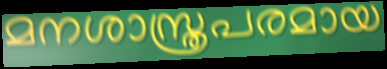
മനശാസ്ത്രപരമായ